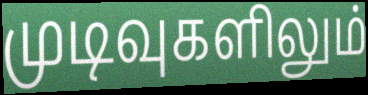
முடிவுகளிலும்